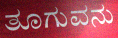
ತೂಗುವನು